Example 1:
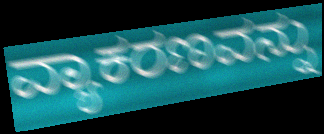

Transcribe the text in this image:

ವ್ಯಾಕರಣವನ್ನು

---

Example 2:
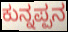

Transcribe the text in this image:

ಕುನ್ನಪ್ಪನ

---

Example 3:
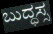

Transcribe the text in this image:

ಬುದ್ಧಸ್ಸ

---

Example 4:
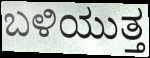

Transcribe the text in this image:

ಬಳಿಯುತ್ತ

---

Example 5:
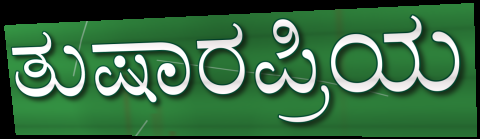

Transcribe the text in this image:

ತುಷಾರಪ್ರಿಯ